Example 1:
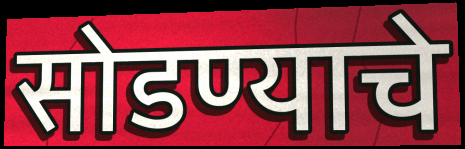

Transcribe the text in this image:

सोडण्याचे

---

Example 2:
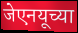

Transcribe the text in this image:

जेएनयूच्या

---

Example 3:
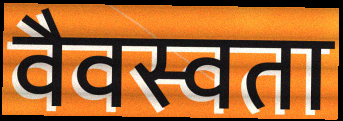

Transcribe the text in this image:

वैवस्वता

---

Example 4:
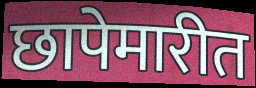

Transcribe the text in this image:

छापेमारीत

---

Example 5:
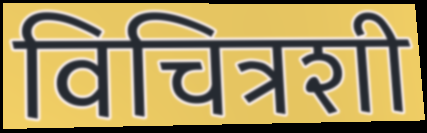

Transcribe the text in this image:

विचित्रशी